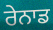
ਰੇਨਾਡ